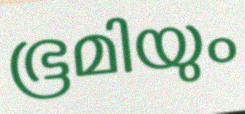
ഭൂമിയും